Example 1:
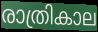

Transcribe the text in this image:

രാത്രികാല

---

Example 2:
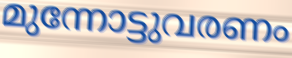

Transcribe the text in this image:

മുന്നോട്ടുവരണം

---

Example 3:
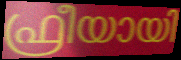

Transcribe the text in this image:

ഫ്രീയായി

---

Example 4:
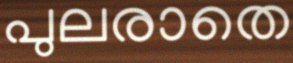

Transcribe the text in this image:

പുലരാതെ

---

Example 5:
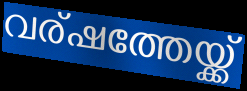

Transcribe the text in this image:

വര്ഷത്തേയ്ക്ക്